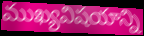
ముఖ్యవిషయాన్ని